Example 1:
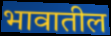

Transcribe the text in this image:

भावातील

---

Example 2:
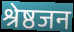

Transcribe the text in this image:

श्रेष्ठजन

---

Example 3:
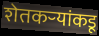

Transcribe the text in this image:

शेतकऱ्यांकडू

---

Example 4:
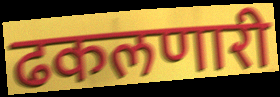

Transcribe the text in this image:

ढकलणारी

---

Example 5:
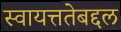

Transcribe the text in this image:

स्वायत्ततेबद्दल